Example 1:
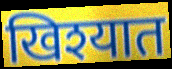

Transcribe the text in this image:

खिश्यात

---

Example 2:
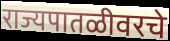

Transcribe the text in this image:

राज्यपातळीवरचे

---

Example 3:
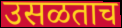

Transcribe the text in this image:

उसळताच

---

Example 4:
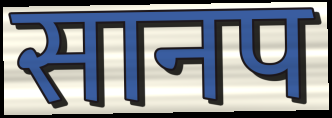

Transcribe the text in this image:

सानप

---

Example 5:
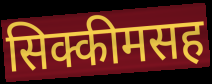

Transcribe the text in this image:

सिक्कीमसह